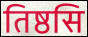
तिष्ठसि